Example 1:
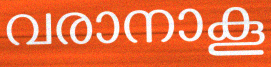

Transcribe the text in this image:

വരാനാകൂ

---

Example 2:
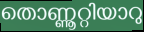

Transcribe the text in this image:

തൊണ്ണൂറ്റിയാറു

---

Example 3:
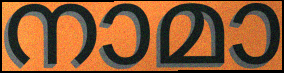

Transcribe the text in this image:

നാമാ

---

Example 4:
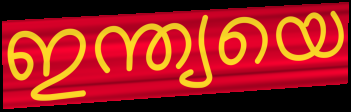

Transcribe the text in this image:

ഇന്ത്യയെ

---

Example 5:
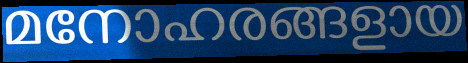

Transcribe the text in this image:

മനോഹരങ്ങളായ